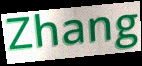
Zhang